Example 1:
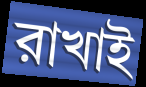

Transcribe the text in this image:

রাখাই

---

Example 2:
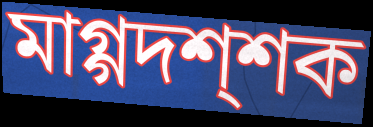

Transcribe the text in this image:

মাগ্গদশ্শক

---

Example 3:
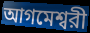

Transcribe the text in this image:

আগমেশ্বরী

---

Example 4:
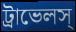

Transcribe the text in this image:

ট্রাভেলস্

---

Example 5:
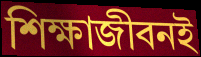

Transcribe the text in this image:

শিক্ষাজীবনই